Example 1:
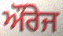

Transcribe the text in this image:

ਔਂਰੇਜ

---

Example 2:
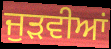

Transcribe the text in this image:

ਜੁੜਵੀਆਂ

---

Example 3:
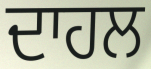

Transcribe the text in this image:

ਦਾਹਲ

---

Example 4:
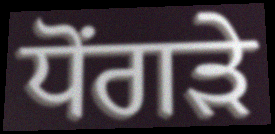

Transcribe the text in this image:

ਧੋਂਗੜੇ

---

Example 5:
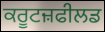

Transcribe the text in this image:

ਕਰੂਟਜ਼ਫੀਲਡ